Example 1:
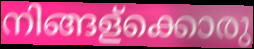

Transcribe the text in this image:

നിങ്ങള്ക്കൊരു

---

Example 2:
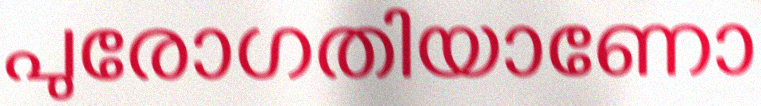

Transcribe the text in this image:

പുരോഗതിയാണോ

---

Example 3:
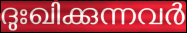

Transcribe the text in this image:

ദുഃഖിക്കുന്നവർ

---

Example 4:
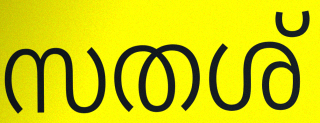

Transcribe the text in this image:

സതശ്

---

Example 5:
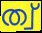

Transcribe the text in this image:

ത്വ്